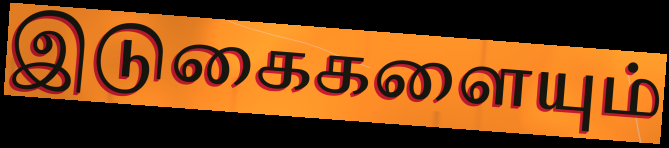
இடுகைகளையும்